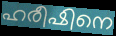
ഹരീഷിനെ